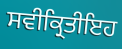
ਸਵੀਕ੍ਰਿਤੀਇਹ